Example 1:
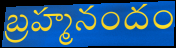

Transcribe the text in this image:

బ్రహ్మనందం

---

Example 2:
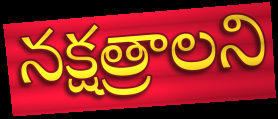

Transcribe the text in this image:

నక్షత్రాలని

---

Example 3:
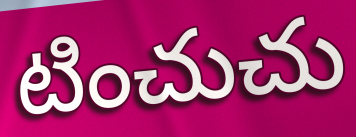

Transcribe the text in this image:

టించుచు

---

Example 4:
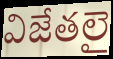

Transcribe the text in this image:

విజేతలై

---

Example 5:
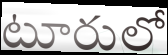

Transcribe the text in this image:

టూరులో